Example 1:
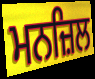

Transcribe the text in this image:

ਮਨਜ਼ਿਲ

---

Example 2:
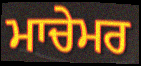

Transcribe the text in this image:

ਮਾਚੇਮਰ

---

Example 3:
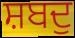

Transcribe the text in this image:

ਸ਼ਬਦੁ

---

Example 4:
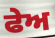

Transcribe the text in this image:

ਫੇਅ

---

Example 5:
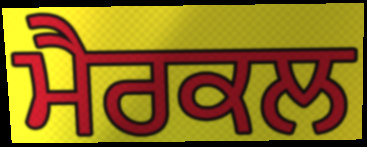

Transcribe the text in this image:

ਮੈਰਕਲ